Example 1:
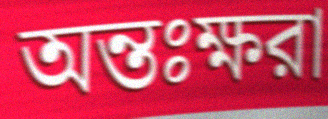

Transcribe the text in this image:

অন্তঃক্ষরা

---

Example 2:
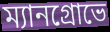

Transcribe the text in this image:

ম্যানগ্রোভে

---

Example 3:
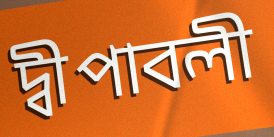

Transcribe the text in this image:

দ্বীপাবলী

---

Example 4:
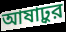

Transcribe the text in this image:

আষাঢ়ুর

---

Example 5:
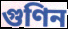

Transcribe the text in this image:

গুণিন